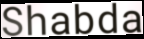
Shabda